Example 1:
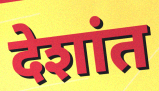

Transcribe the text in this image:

देशांत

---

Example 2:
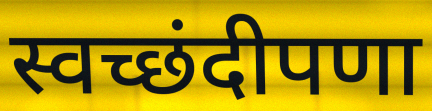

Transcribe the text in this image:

स्वच्छंदीपणा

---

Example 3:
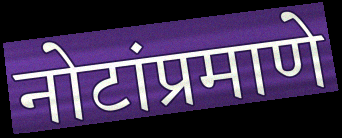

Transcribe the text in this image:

नोटांप्रमाणे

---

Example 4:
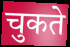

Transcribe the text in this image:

चुकते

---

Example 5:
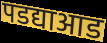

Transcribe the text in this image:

पडद्याआड